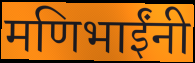
मणिभाईंनी